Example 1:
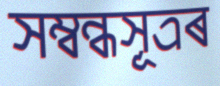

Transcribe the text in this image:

সম্বন্ধসূত্ৰৰ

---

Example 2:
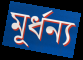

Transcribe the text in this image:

মূৰ্ধন্য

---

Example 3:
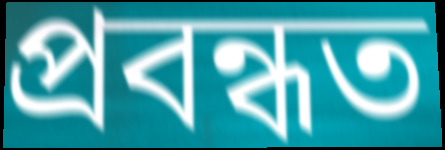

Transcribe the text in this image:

প্ৰবন্ধত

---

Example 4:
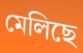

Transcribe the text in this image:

মেলিছে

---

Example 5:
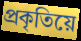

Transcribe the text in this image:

প্ৰকৃতিয়ে